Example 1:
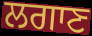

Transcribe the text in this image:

ਲਗਾਣ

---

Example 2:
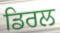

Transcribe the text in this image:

ਡਿਰਲ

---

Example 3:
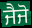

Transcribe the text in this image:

ਜੈਜੋ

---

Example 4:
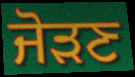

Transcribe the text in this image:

ਜੋੜਣ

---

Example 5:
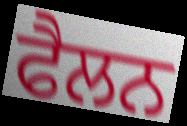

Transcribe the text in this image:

ਫੈਲਨ